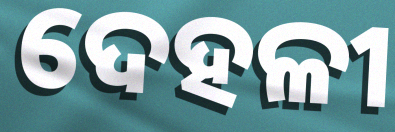
ଦେହଳୀ